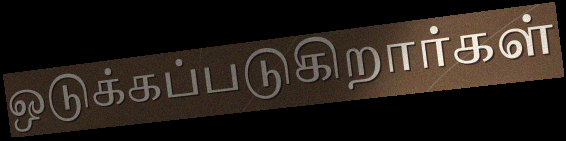
ஒடுக்கப்படுகிறார்கள்